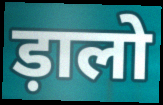
ड़ालो